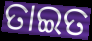
ତାଇତ